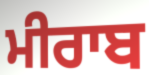
ਮੀਰਾਬ